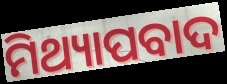
ମିଥ୍ୟାପବାଦ